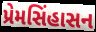
પ્રેમસિંહાસન